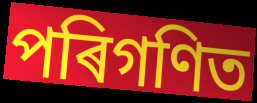
পৰিগণিত